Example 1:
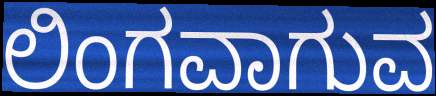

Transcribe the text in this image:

ಲಿಂಗವಾಗುವ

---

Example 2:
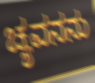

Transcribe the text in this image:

ಚ್ಯವನನು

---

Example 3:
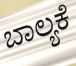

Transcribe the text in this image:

ಬಾಲ್ಯಕೆ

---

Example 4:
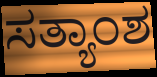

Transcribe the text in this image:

ಸತ್ಯಾಂಶ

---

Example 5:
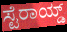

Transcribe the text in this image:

ಸ್ಟೆರಾಯ್ಡ್